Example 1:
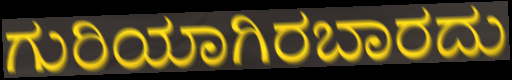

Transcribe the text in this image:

ಗುರಿಯಾಗಿರಬಾರದು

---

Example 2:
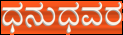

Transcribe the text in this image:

ಧನುಧವರ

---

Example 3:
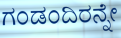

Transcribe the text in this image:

ಗಂಡಂದಿರನ್ನೇ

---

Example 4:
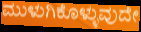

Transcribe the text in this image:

ಮುಳುಗಿಕೊಳ್ಳುವುದೇ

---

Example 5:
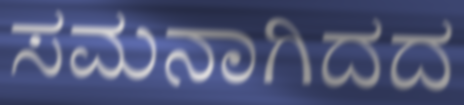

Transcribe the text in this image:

ಸಮನಾಗಿದದ